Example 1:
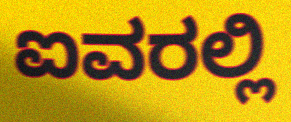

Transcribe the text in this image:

ಐವರಲ್ಲಿ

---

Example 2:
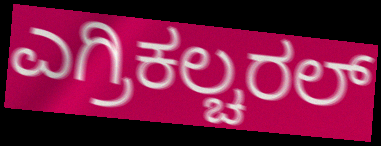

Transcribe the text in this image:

ಎಗ್ರಿಕಲ್ಚರಲ್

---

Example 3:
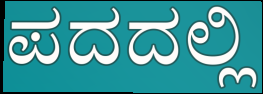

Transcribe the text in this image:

ಪದದಲ್ಲಿ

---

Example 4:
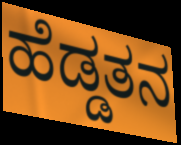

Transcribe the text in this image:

ಹೆಡ್ಡತನ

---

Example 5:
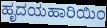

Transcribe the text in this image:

ಹೃದಯಹಾರಿಯಿಂ